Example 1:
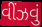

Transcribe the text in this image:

વીંઝવું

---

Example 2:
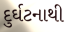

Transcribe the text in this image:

દુર્ઘટનાથી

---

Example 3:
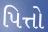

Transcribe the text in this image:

પિત્તો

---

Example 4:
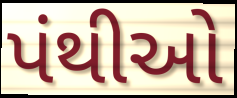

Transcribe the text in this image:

પંથીઓ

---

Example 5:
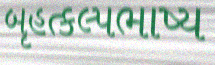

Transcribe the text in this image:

બૃહત્કલ્પભાષ્ય